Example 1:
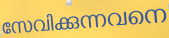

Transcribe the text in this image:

സേവിക്കുന്നവനെ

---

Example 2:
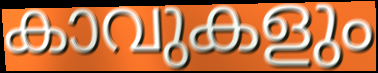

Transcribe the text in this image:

കാവുകളും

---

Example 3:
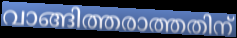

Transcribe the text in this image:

വാങ്ങിത്തരാത്തതിന്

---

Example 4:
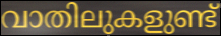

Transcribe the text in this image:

വാതിലുകളുണ്ട്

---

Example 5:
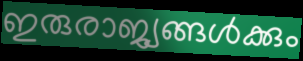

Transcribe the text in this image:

ഇരുരാജ്യങ്ങൾക്കും